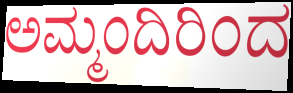
ಅಮ್ಮಂದಿರಿಂದ